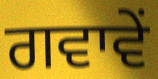
ਗਵਾਵੇਂ